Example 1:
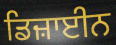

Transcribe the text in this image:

ਡਿਜ਼ਾਈਨ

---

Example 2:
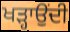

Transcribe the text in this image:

ਖੜ੍ਹਾਉਂਦੀ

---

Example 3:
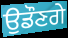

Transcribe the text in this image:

ਉਡੌਣਗੇ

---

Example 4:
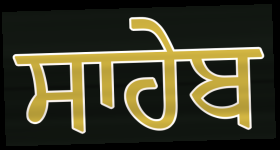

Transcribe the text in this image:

ਸਾਹੇਬ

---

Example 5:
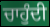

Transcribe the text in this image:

ਚਾਹੁੰਦੀ